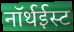
नॉर्थईस्ट